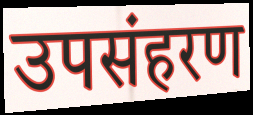
उपसंहरण